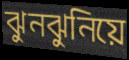
ঝুনঝুনিয়ে